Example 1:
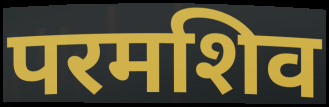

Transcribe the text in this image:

परमशिव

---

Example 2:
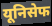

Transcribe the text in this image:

यूनिसेफ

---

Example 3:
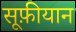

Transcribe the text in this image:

सूफ़ीयान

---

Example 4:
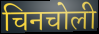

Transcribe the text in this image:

चिनचोली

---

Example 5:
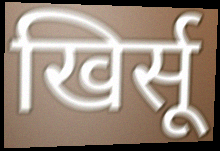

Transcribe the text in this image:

खिर्सू